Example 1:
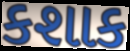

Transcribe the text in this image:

કશાક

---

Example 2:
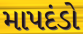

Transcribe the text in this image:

માપદંડો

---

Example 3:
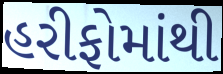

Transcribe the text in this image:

હરીફોમાંથી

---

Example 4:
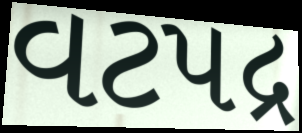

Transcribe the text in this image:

વટપદ્ર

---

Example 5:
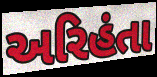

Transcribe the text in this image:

અરિહંતા